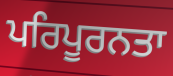
ਪਰਿਪੂਰਨਤਾ